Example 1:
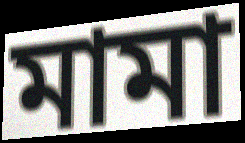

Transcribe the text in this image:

মামা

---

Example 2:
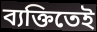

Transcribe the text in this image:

ব্যক্তিতেই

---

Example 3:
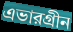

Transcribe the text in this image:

এভারগ্রীন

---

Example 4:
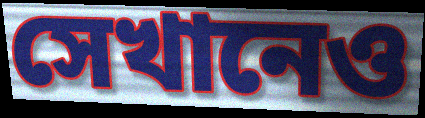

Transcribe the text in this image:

সেখানেও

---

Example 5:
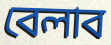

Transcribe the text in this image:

বেলাব